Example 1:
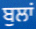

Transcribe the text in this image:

ਬੁਲਾਂ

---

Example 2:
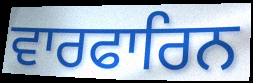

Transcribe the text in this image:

ਵਾਰਫਾਰਿਨ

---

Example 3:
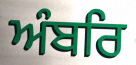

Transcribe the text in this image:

ਅੰਬਰਿ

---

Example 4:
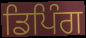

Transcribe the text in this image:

ਡਿਪਿੰਗ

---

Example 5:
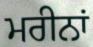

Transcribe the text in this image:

ਮਰੀਨਾਂ